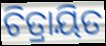
ଚିତ୍ରାୟିତ